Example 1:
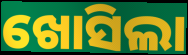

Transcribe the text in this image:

ଖୋସିଲା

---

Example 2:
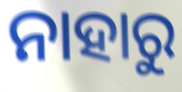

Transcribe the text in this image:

ନାହାରୁ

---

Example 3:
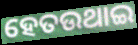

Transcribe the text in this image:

ହେତଉଥାଇ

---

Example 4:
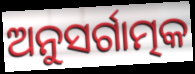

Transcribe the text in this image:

ଅନୁସର୍ଗାତ୍ମକ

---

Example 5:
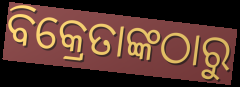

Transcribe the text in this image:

ବିକ୍ରେତାଙ୍କଠାରୁ